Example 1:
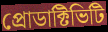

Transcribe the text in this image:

প্রোডাক্টিভিটি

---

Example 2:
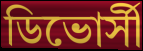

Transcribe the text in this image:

ডিভোর্সী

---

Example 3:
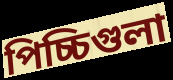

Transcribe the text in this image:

পিচ্চিগুলা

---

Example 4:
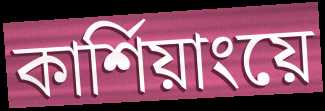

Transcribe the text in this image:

কার্শিয়াংয়ে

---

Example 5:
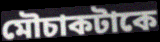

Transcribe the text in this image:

মৌচাকটাকে